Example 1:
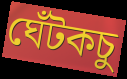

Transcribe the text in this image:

ঘেঁটকচু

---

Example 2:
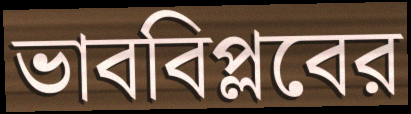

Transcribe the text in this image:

ভাববিপ্লবের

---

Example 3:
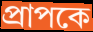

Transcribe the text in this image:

প্রাপকে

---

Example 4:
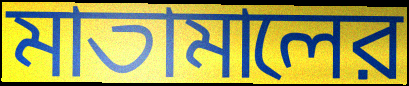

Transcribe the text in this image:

মাতামালের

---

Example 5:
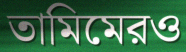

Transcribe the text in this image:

তামিমেরও